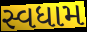
સ્વધામ